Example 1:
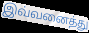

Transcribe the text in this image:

இவ்வனைத்து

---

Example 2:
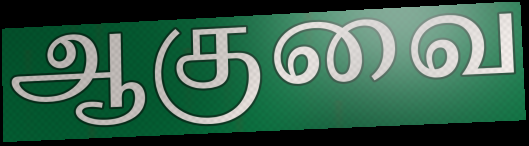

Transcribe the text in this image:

ஆகுவை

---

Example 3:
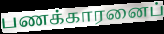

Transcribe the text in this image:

பணக்காரனைப்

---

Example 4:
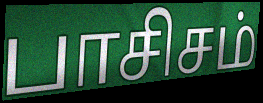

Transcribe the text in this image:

பாசிசம்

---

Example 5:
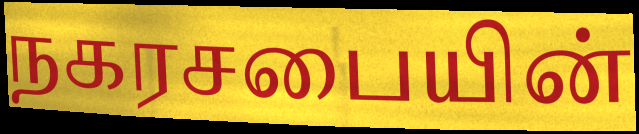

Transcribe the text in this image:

நகரசபையின்